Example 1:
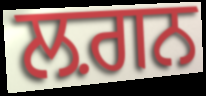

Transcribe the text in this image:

ਲ਼ਗਨ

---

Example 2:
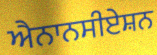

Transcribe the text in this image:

ਐਨਾਨਸੀਏਸ਼ਨ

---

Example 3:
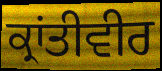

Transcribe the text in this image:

ਕ੍ਰਾਂਤੀਵੀਰ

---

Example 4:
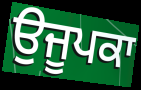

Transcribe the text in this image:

ਉਜੂਪਕਾ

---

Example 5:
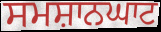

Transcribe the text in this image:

ਸਮਸ਼ਾਨਘਾਟ